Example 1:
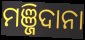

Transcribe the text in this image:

ମଞ୍ଜିଦାନା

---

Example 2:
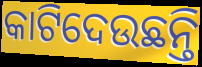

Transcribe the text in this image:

କାଟିଦେଉଛନ୍ତି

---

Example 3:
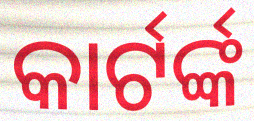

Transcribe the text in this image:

କାର୍ଟର୍ଙ୍କ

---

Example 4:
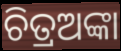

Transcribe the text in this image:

ଚିତ୍ରଅଙ୍କା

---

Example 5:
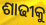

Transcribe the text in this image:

ଶାଢୀକୁ